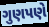
ગુણપણે